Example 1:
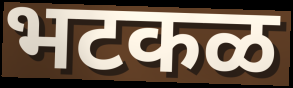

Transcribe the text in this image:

भटकळ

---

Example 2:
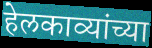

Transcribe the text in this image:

हेलकाव्यांच्या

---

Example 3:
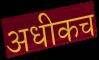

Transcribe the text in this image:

अधीकच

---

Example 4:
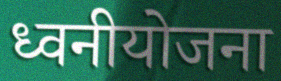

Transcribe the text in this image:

ध्वनीयोजना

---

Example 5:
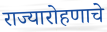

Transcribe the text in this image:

राज्यारोहणाचे